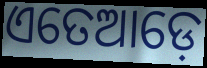
ଏତେଆଡ଼େ